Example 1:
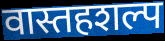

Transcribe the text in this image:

वास्तहशल्प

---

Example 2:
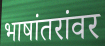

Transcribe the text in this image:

भाषांतरांवर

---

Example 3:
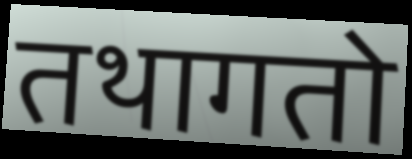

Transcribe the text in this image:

तथागतो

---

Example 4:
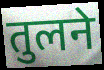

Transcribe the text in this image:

तुलने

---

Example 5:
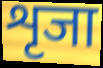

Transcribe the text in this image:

शृजा